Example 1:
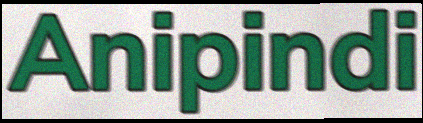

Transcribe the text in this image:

Anipindi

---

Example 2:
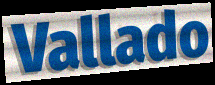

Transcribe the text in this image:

Vallado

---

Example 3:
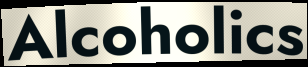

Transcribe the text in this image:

Alcoholics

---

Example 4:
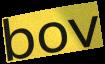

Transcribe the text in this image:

bov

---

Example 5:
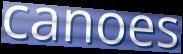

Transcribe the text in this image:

canoes